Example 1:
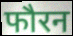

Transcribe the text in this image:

फौरन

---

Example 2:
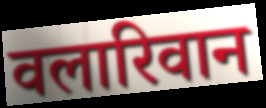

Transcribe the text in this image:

वलारिवान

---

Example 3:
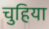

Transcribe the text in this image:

चुहिया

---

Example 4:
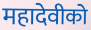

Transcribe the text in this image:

महादेवीको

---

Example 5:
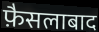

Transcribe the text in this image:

फ़ैसलाबाद